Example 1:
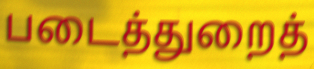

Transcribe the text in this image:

படைத்துறைத்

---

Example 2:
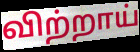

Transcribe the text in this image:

விற்றாய்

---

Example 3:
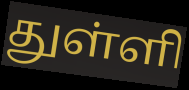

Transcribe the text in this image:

துள்ளி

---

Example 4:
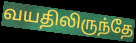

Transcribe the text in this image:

வயதிலிருந்தே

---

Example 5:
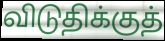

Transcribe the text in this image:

விடுதிக்குத்